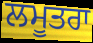
ਲਮੂਤਰਾ